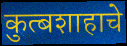
कुत्बशाहाचे